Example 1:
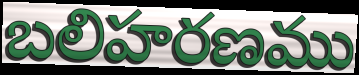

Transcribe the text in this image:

బలిహరణము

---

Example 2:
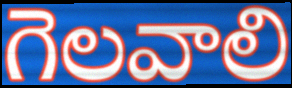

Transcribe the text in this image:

గెలవాలి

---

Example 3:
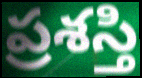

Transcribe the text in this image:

ప్రశస్తి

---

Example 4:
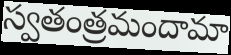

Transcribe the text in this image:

స్వతంత్రమందామా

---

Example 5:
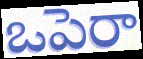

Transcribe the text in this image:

ఒపెరా